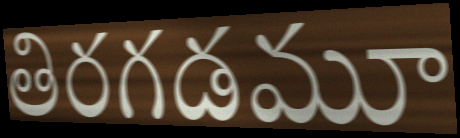
తిరగడమూ